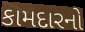
કામદારનો